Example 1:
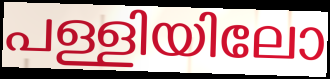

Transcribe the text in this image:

പള്ളിയിലോ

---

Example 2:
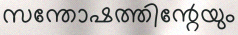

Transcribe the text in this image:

സന്തോഷത്തിന്റേയും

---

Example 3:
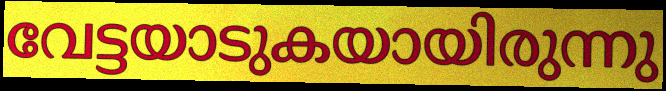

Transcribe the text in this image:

വേട്ടയാടുകയായിരുന്നു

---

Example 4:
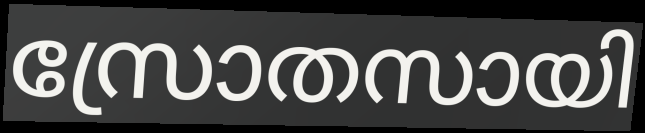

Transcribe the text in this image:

സ്രോതസായി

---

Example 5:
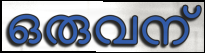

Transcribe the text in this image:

ഒരുവന്